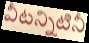
వీటన్నిటినీ